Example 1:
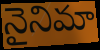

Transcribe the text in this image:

నైనిమా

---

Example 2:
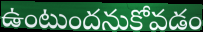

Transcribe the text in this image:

ఉంటుందనుకోవడం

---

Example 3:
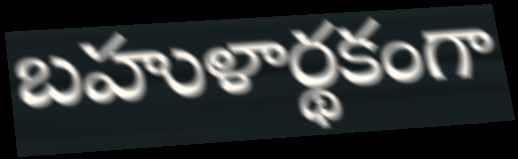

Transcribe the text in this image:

బహుళార్థకంగా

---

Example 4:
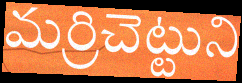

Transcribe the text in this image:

మర్రిచెట్టుని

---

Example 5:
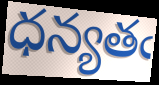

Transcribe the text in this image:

ధన్యతఁ